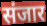
संजार